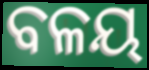
ବଳୟ